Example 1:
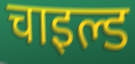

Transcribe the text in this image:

चाइल्ड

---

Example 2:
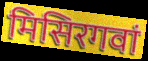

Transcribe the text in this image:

मिसिरगवां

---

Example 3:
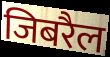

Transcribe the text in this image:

जिबरैल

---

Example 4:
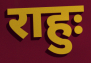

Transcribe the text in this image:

राहुः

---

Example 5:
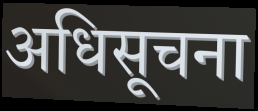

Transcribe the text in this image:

अधिसूचना